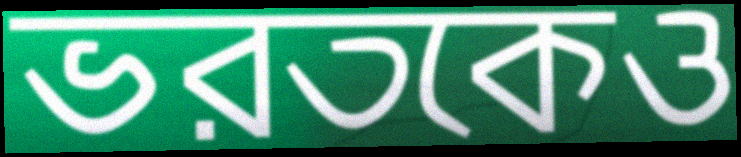
ভরতকেও